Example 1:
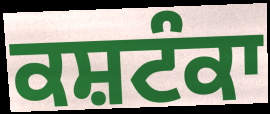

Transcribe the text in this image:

ਕਸ਼ਟੰਕਾ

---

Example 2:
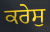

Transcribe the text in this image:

ਕਰੇਸੁ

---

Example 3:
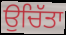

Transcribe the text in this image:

ਉਚਿੱਤਾ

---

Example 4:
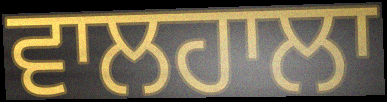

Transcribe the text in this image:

ਵਾਲਹਾਲਾ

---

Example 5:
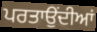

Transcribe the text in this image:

ਪਰਤਾਉਂਦੀਆਂ